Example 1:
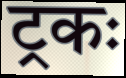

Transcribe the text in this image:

ट्रकः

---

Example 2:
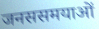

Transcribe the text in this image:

जनससमयाओं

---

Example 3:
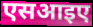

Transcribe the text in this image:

एसआइए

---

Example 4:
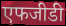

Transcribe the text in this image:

एफजीडी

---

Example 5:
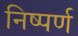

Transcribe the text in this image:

निष्पर्ण